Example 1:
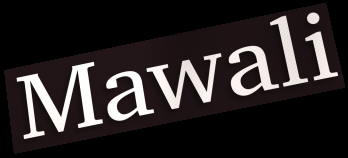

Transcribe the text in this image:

Mawali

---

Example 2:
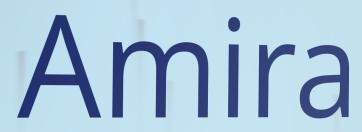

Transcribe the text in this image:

Amira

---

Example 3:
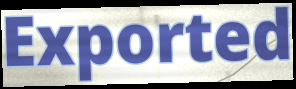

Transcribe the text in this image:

Exported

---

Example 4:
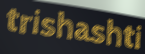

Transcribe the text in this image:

trishashti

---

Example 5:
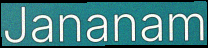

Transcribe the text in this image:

Jananam